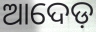
ଆଦେଡ଼